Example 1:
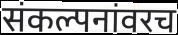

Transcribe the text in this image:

संकल्पनांवरच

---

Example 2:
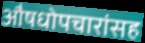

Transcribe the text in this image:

औषधोपचारांसह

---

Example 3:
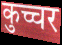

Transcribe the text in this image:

कुच्चर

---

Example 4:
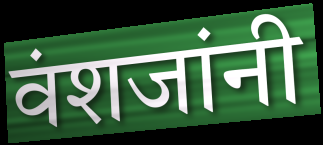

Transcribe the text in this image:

वंशजांनी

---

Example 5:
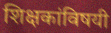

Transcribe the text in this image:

शिक्षकांविषयी